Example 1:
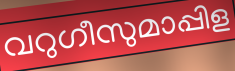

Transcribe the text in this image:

വറുഗീസുമാപ്പിള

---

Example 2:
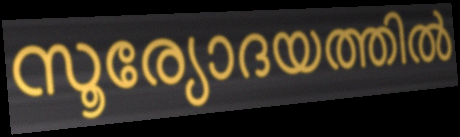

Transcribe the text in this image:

സൂര്യോദയത്തിൽ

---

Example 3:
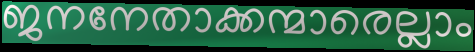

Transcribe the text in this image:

ജനനേതാക്കന്മാരെല്ലാം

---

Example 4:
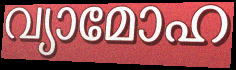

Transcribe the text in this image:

വ്യാമോഹ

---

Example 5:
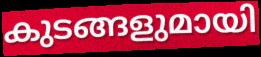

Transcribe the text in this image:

കുടങ്ങളുമായി